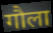
गौला